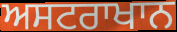
ਅਸਟਰਾਖਾਨ